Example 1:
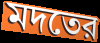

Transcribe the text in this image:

মদতের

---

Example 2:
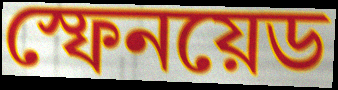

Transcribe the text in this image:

স্ফেনয়েড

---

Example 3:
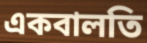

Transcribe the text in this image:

একবালতি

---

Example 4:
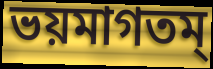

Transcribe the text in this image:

ভয়মাগতম্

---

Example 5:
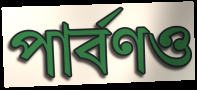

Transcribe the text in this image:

পার্বণও